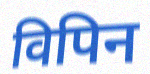
विपिन